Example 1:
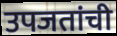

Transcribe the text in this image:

उपजतांची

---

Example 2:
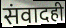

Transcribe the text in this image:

संवादही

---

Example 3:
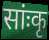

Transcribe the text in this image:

सांःकृ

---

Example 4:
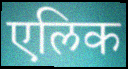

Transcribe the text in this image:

एलिक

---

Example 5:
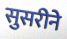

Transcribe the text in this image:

सुसरीने